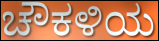
ಚೌಕಳಿಯ